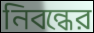
নিবন্ধের